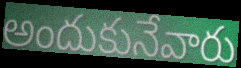
అందుకునేవారు